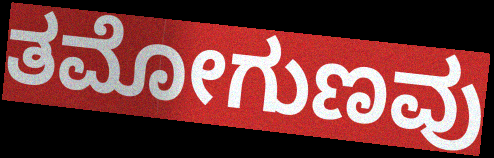
ತಮೋಗುಣವು